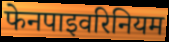
फेनपाइवरिनियम